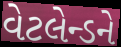
વેટલેન્ડને